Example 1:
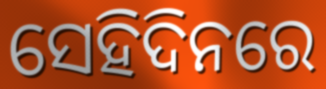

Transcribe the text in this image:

ସେହିଦିନରେ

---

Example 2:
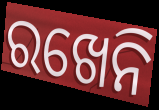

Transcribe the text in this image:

ରଖେନି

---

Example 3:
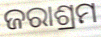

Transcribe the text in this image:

ଜରାଶ୍ରମ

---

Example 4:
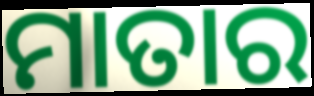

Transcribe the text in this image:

ମାତାର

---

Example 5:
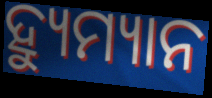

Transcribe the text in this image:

ହ୍ୟୁମ୍ୟାନ